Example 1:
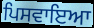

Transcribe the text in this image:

ਪਿਸਵਾਇਆ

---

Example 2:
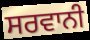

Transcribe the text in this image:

ਸਰਵਾਨੀ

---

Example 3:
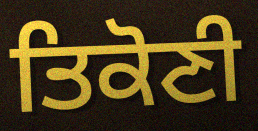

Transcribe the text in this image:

ਤਿਕੋਣੀ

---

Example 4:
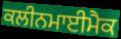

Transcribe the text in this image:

ਕਲੀਨਮਾਈਮੈਕ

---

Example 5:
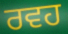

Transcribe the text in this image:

ਰਵਹ